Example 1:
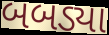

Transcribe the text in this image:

બબડ્યા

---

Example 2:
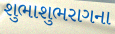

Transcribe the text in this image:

શુભાશુભરાગના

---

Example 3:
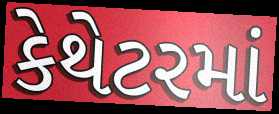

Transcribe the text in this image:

કેથેટરમાં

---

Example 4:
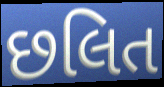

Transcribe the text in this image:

છલિત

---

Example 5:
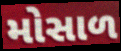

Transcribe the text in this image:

મોસાળ